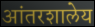
आंतरशालेय